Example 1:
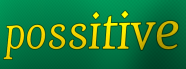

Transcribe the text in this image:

possitive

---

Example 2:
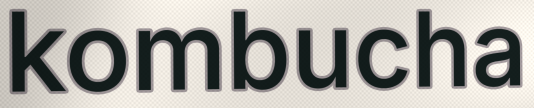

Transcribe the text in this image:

kombucha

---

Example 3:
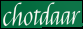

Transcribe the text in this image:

chotdaar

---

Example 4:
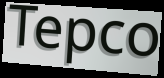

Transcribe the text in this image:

Tepco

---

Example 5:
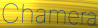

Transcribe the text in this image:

Chamera